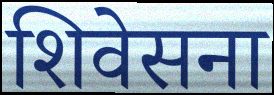
शिवेसना